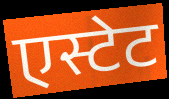
एस्टेट